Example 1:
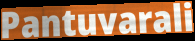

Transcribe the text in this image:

Pantuvarali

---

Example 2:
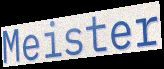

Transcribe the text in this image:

Meister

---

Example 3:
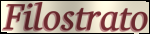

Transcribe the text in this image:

Filostrato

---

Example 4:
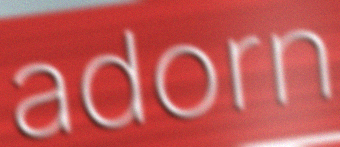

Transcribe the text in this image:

adorn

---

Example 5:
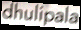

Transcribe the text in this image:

dhulipala